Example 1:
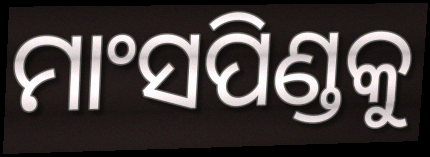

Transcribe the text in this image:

ମାଂସପିଣ୍ଡକୁ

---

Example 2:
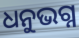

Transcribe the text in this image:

ଧନୁଭଗ୍ନ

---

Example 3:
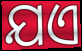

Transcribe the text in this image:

ଯଏ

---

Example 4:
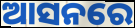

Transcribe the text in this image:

ଆସନରେ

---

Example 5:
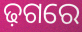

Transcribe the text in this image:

ଢ଼ଗରେ